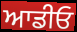
ਆਡੀਓ